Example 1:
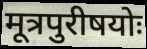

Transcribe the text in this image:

मूत्रपुरीषयोः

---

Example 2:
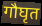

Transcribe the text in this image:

गौघृत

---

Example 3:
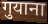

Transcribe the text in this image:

गुयाना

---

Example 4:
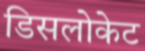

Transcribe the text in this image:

डिसलोकेट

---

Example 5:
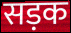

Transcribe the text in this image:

सड़क